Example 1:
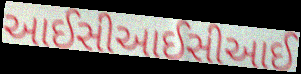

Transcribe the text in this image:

આઈસીઆઈસીઆઈ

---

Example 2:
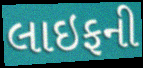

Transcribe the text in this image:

લાઇફની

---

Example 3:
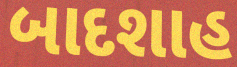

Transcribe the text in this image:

બાદશાહ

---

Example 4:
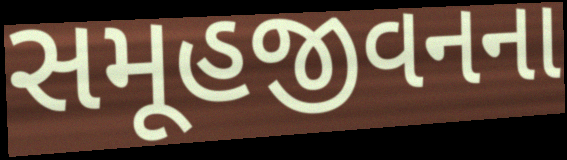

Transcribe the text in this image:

સમૂહજીવનના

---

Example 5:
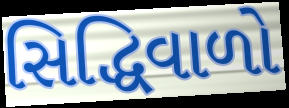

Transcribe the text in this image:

સિદ્ધિવાળો